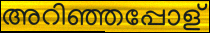
അറിഞ്ഞപ്പോള്